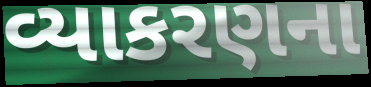
વ્યાકરણના